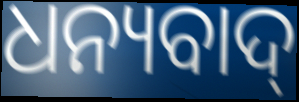
ଧନ୍ୟବାଦ୍